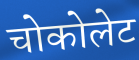
चोकोलेट